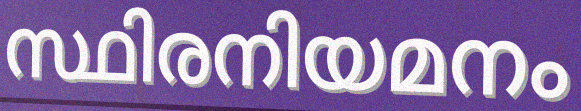
സ്ഥിരനിയമനം